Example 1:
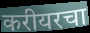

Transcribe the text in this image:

करीयरचा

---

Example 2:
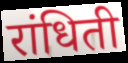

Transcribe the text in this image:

रांधिती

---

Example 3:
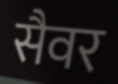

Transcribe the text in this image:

सैवर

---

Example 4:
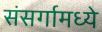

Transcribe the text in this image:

संसर्गामध्ये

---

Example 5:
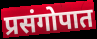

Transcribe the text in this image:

प्रसंगोपात